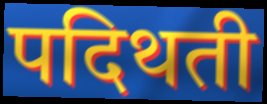
पदिथती